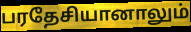
பரதேசியானாலும்